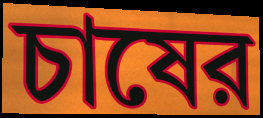
চাষের